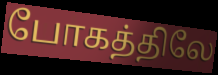
போகத்திலே